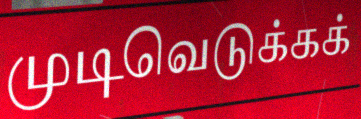
முடிவெடுக்கக்